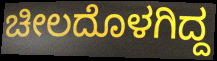
ಚೀಲದೊಳಗಿದ್ದ